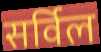
सर्विल